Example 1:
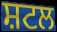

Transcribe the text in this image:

ਸ਼ਟਲ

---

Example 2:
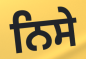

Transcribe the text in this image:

ਨਿਸੇ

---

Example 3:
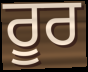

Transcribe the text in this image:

ਰੂਰ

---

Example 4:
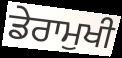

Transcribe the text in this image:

ਡੇਰਾਮੁਖੀ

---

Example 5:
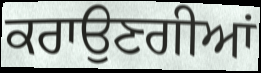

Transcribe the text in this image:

ਕਰਾਉਣਗੀਆਂ